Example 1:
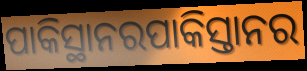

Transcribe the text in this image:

ପାକିସ୍ଥାନରପାକିସ୍ତାନର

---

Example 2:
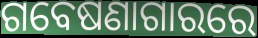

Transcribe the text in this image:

ଗବେଷଣାଗାରରେ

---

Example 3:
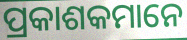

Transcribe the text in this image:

ପ୍ରକାଶକମାନେ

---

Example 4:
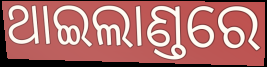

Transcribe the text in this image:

ଥାଇଲାଣ୍ଡରେ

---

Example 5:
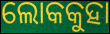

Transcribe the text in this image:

ଲୋକକୁହା